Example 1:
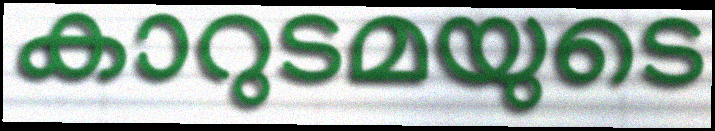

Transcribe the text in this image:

കാറുടമയുടെ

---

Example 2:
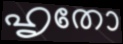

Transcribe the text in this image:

ഹൃതോ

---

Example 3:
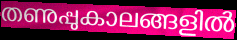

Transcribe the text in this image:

തണുപ്പുകാലങ്ങളിൽ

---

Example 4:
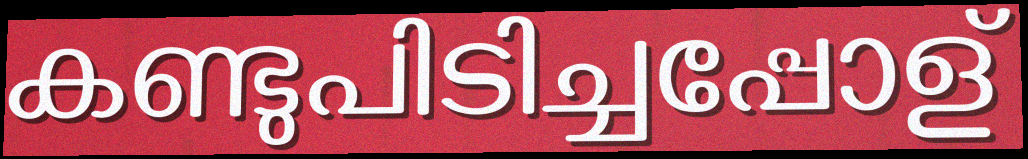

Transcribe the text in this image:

കണ്ടുപിടിച്ചപ്പോള്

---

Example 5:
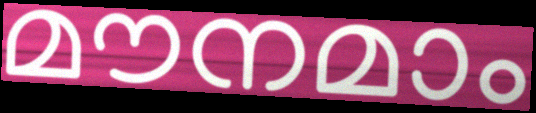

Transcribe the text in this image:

മൗനമാം